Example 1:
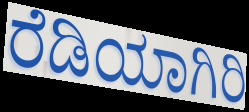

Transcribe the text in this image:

ರೆಡಿಯಾಗಿರಿ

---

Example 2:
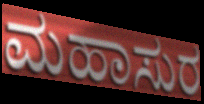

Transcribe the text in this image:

ಮಹಾಸುರ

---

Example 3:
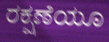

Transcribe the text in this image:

ರಕ್ಷಣೆಯೂ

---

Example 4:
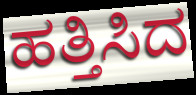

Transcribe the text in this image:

ಹತ್ತಿಸಿದ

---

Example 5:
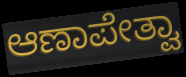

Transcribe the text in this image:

ಆಣಾಪೇತ್ವಾ